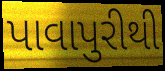
પાવાપુરીથી